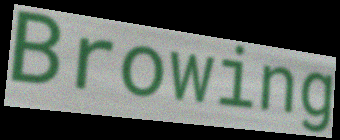
Browing